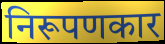
निरूपणकार